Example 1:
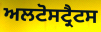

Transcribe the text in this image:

ਅਲਟੋਸਟ੍ਰੈਟਸ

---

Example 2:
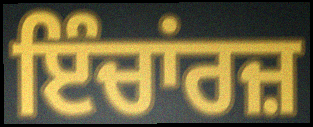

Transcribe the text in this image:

ਇੰਚਾਂਰਜ਼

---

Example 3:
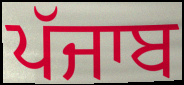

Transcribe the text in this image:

ਪੱਜਾਬ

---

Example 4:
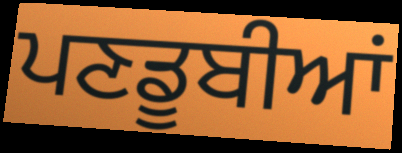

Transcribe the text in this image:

ਪਣਡੂਬੀਆਂ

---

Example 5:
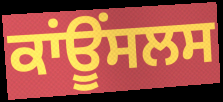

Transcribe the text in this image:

ਕਾਂਊਂਸਲਸ